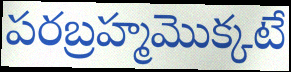
పరబ్రహ్మమొక్కటే